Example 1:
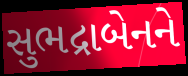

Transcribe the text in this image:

સુભદ્રાબેનને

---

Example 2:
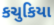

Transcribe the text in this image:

કચુકિયા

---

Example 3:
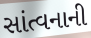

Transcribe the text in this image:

સાંત્વનાની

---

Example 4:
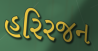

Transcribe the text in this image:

હરિરજન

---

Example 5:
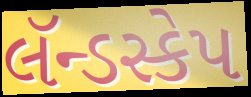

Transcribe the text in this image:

લૅન્ડસ્કેપ